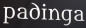
padinga